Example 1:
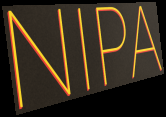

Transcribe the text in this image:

NIPA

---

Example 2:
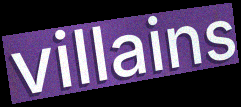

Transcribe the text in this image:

villains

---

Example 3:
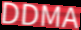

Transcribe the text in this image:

DDMA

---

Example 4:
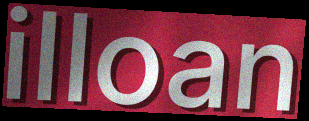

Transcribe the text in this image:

illoan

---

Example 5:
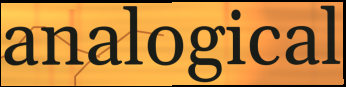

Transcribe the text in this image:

analogical